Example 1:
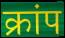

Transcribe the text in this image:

क्रांप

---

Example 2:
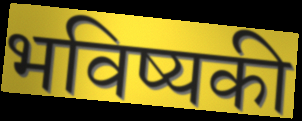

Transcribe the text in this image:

भविष्यकी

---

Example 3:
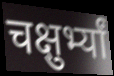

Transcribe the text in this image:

चक्षुर्भ्यां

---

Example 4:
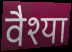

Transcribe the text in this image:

वैश्या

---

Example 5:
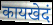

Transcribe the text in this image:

कायखेदं